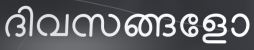
ദിവസങ്ങളോ